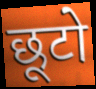
छूटो